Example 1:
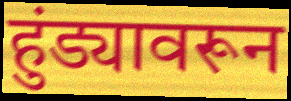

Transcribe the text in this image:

हुंड्यावरून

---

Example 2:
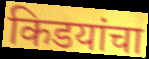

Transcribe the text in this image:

किडयांचा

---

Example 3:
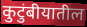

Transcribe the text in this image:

कुटुंबीयातील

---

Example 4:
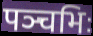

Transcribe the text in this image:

पञ्चभिः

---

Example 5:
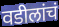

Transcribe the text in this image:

वडीलांचं